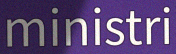
ministri